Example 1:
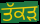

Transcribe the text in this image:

ਤੱਕੜ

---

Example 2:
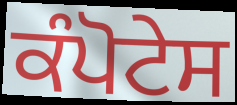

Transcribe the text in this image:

ਕੰਪੋਟੇਸ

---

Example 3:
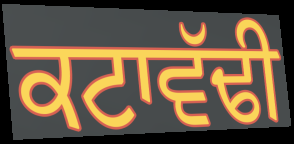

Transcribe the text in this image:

ਕਟਾਵੱਢੀ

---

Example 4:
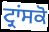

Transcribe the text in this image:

ਟ੍ਰਾਂਸਕੋ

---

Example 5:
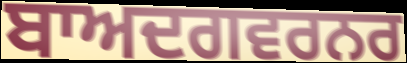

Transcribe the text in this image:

ਬਾਅਦਗਵਰਨਰ